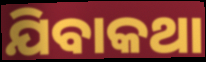
ଯିବାକଥା